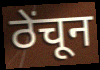
ठेंचून